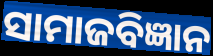
ସାମାଜବିଜ୍ଞାନ